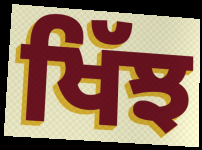
ਖਿੱਝ